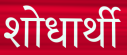
शोधार्थी